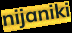
nijaniki